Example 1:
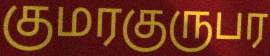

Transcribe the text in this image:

குமரகுருபர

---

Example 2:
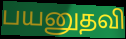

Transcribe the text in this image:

பயனுதவி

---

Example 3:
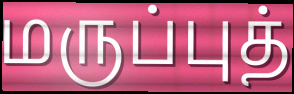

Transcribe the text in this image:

மருப்புத்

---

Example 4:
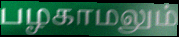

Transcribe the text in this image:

பழகாமலும்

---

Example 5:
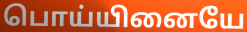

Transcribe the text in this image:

பொய்யினையே